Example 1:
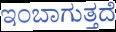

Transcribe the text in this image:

ಇಂಬಾಗುತ್ತದೆ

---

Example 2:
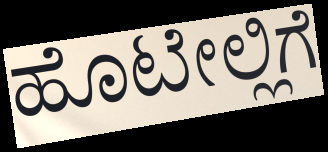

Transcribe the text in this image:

ಹೊಟೇಲ್ಲಿಗೆ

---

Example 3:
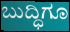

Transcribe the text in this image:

ಬುದ್ಧಿಗೂ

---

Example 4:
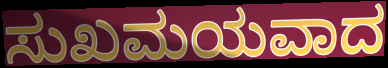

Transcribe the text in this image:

ಸುಖಮಯವಾದ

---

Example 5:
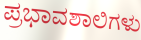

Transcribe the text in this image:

ಪ್ರಭಾವಶಾಲಿಗಳು